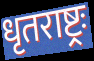
धृतराष्ट्रः